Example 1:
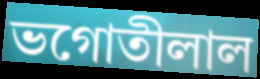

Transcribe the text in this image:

ভগোতীলাল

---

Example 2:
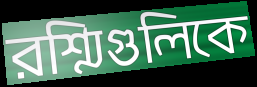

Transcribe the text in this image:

রশ্মিগুলিকে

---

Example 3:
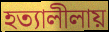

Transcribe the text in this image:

হত্যালীলায়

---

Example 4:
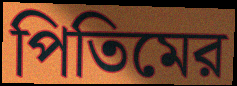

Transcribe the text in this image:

পিতিমের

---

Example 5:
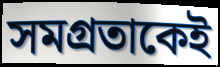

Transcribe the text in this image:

সমগ্রতাকেই